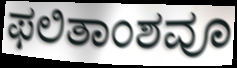
ಫಲಿತಾಂಶವೂ